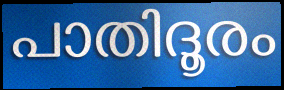
പാതിദൂരം